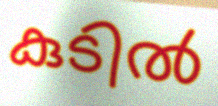
കുടിൽ